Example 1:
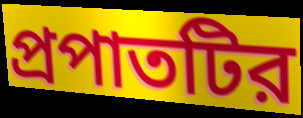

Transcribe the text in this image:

প্রপাতটির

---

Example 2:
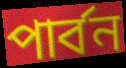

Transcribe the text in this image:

পার্বন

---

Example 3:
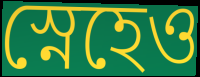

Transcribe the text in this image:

স্নেহেও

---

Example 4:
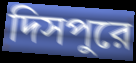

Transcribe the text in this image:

দিসপুরে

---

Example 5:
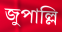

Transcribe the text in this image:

জুপাল্লি